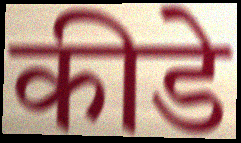
कीडे